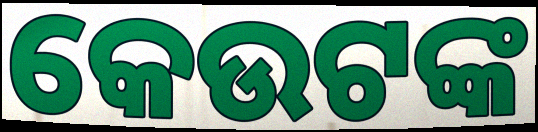
କେଉଟଙ୍କ